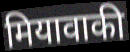
मियावाकी